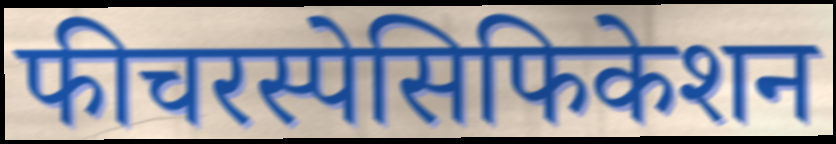
फीचरस्पेसिफिकेशन